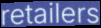
retailers